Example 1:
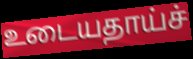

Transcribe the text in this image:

உடையதாய்ச்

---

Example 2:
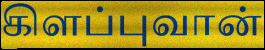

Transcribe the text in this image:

கிளப்புவான்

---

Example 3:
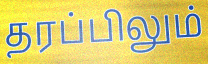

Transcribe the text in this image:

தரப்பிலும்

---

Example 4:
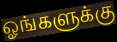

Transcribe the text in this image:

ஓங்களுக்கு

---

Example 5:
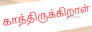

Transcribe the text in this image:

காத்திருக்கிறாள்